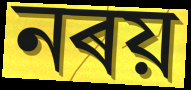
নৰয়